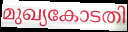
മുഖ്യകോടതി